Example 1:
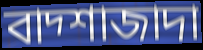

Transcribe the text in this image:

বাদ্শাজাদা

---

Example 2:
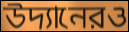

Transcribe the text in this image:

উদ্যানেরও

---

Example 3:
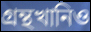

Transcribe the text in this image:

গ্রন্থখানিও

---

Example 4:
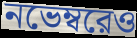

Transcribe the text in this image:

নভেম্বরেও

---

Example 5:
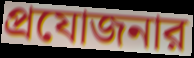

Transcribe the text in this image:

প্রযোজনার